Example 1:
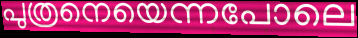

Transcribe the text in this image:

പുത്രനെയെന്നപോലെ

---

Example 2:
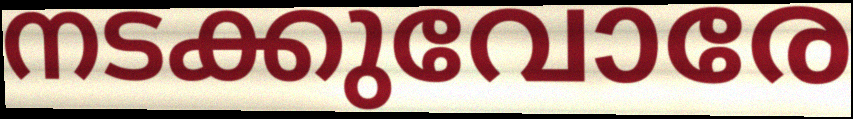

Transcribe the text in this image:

നടക്കുവോരേ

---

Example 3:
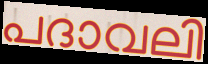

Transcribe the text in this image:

പദാവലി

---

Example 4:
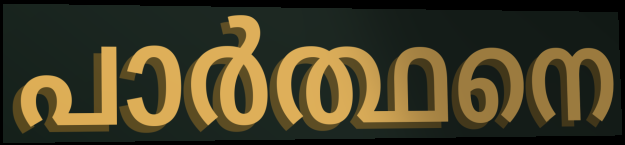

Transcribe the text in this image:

പാർത്ഥനെ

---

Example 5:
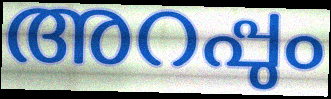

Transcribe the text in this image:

അറപ്പും